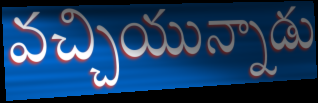
వచ్చియున్నాడు